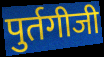
पुर्तगीजी